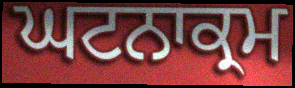
ਘਟਨਾਕ੍ਰਮ